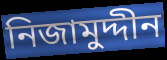
নিজামুদ্দীন